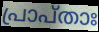
പ്രാപ്താഃ